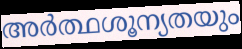
അർത്ഥശൂന്യതയും